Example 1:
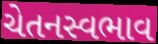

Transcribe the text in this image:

ચેતનસ્વભાવ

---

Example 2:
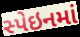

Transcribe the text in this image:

સ્પેઇનમાં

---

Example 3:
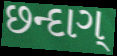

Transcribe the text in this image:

છન્દાગ્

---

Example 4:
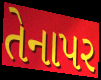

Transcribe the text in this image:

તેનાપર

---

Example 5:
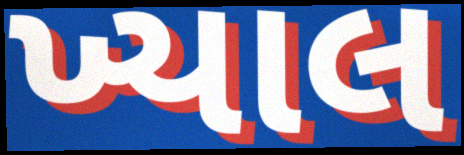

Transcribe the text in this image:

ખ્યાલ